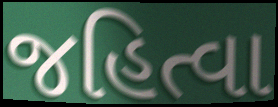
જહિત્વા